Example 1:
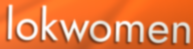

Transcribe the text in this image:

lokwomen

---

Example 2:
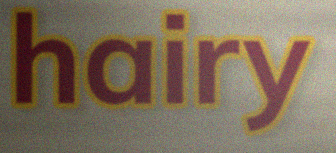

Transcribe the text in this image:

hairy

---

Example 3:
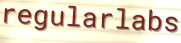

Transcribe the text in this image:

regularlabs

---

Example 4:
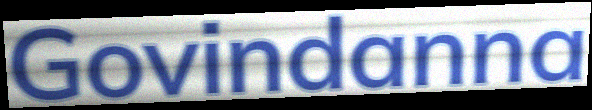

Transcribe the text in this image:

Govindanna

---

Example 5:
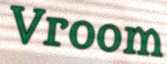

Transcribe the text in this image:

Vroom